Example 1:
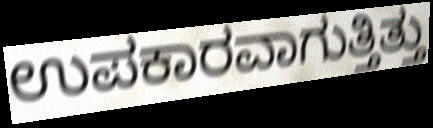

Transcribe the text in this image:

ಉಪಕಾರವಾಗುತ್ತಿತ್ತು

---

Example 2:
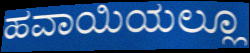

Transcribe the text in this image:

ಹವಾಯಿಯಲ್ಲೂ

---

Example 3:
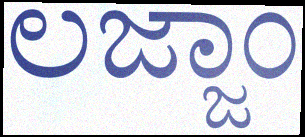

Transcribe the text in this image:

ಲಜ್ಜಾಂ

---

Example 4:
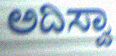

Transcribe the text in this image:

ಅದಿಸ್ವಾ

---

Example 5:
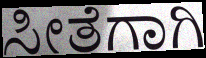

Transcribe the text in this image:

ಸೀತೆಗಾಗಿ